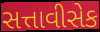
સત્તાવીસેક